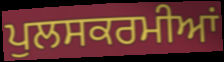
ਪੁਲਸਕਰਮੀਆਂ